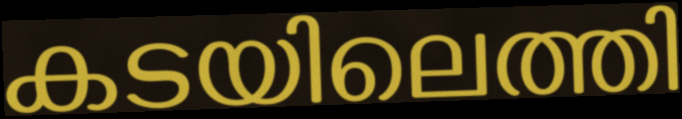
കടയിലെത്തി